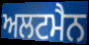
ਅਲਟਮੈਨ